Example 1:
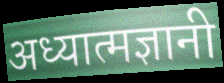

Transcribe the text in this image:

अध्यात्मज्ञानी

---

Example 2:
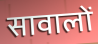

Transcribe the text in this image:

सावालों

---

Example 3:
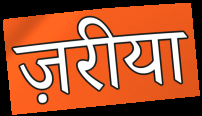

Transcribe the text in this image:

ज़रीया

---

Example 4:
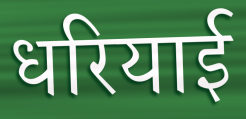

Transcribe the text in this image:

धरियाई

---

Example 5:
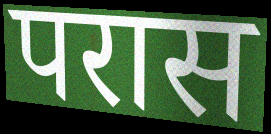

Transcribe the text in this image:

परास